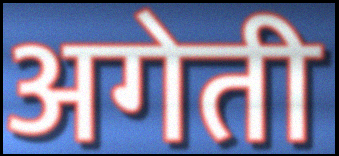
अगेती